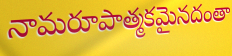
నామరూపాత్మకమైనదంతా